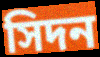
সিদন